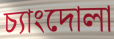
চ্যাংদোলা